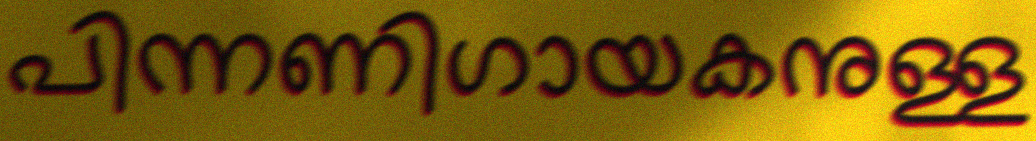
പിന്നണിഗായകനുള്ള